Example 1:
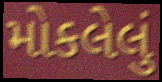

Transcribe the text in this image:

મોકલેલું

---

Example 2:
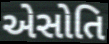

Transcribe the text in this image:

એસોતિ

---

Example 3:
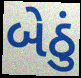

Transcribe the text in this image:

બેઠું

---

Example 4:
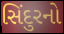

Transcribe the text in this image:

સિંદુરનો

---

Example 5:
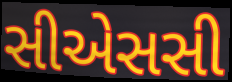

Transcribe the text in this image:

સીએસસી